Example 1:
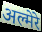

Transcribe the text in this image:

अल्मेरे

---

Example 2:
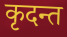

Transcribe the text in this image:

कृदन्त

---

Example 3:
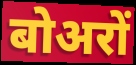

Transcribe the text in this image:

बोअरों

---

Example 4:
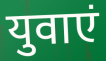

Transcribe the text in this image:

युवाएं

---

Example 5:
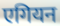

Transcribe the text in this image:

एगियन